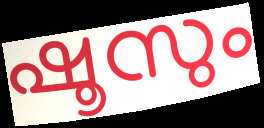
ഷൂസും